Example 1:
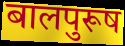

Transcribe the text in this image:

बालपुरूष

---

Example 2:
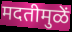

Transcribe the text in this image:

मदतीमुळें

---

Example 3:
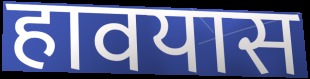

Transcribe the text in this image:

हावयास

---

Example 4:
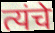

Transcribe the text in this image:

त्यंचे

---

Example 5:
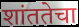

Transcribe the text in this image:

शांततेचा